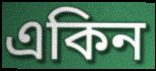
একিন